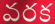
వరక